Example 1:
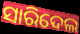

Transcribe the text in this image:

ସାରିଦେଲ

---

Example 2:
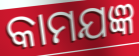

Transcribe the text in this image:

କାମଯଜ୍ଞ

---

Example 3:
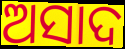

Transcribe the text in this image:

ଅସାଦ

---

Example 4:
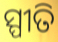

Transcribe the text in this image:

ସ୍ପୀତି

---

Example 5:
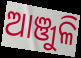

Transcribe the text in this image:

ଆଞ୍ଜୁଳି